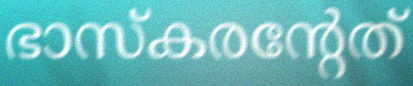
ഭാസ്കരന്റേത്